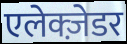
एलेक्ज़ेडर